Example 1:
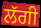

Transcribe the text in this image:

ਲੱਗੀ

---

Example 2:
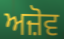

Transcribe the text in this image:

ਅਜ਼ੋਵ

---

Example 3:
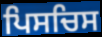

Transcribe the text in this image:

ਪਿਸਚਿਸ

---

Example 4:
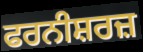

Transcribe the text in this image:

ਫਰਨੀਸ਼ਰਜ਼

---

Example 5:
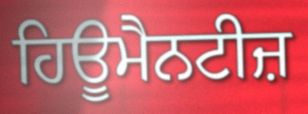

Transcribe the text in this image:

ਹਿਊਮੈਨਟੀਜ਼